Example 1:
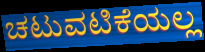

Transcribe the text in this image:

ಚಟುವಟಿಕೆಯಲ್ಲ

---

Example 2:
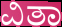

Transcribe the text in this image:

ವಿತಾ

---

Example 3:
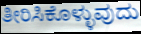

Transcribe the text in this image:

ತೀರಿಸಿಕೊಳ್ಳುವುದು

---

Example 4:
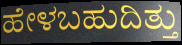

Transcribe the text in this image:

ಹೇಳಬಹುದಿತ್ತು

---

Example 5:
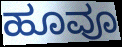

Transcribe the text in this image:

ಹೂವೂ